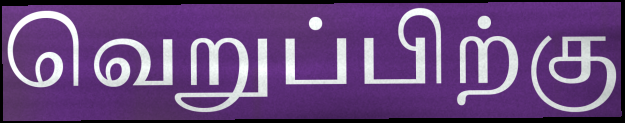
வெறுப்பிற்கு